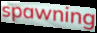
spawning